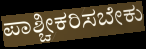
ಪಾಶ್ಚೀಕರಿಸಬೇಕು